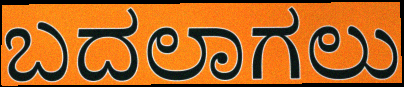
ಬದಲಾಗಲು